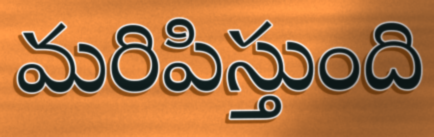
మరిపిస్తుంది